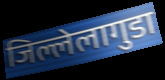
जिल्लेलागुडा